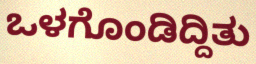
ಒಳಗೊಂಡಿದ್ದಿತು